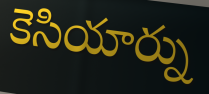
కెసియార్ను